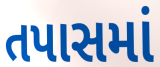
તપાસમાં